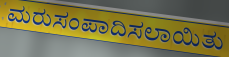
ಮರುಸಂಪಾದಿಸಲಾಯಿತು